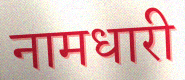
नामधारी